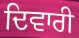
ਦਿਵਾਰੀ